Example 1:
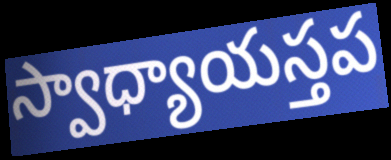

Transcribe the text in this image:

స్వాధ్యాయస్తప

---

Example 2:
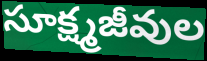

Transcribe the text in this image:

సూక్ష్మజీవుల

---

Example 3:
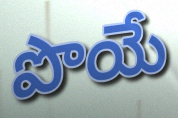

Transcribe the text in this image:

పొయే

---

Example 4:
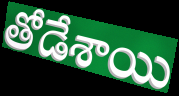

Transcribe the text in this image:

తోడేశాయి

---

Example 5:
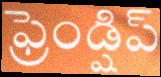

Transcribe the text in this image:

ఫ్రెండ్షిప్